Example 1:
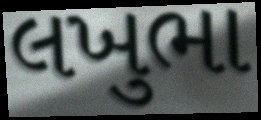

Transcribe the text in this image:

લખુભા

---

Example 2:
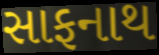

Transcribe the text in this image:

સાફનાથ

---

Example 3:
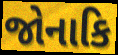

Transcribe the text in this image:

જોનાકિ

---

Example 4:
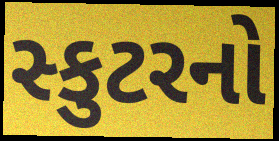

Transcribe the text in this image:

સ્કુટરનો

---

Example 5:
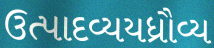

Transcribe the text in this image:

ઉત્પાદવ્યયધ્રૌવ્ય